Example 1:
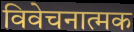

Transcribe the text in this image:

विवेचनात्मक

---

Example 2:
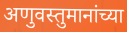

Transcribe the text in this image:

अणुवस्तुमानांच्या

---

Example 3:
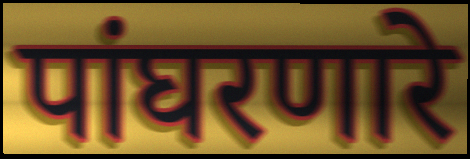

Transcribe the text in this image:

पांघरणारे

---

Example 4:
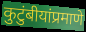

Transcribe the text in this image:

कुटुंबीयांप्रमाणे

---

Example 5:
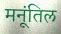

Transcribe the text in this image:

मनूंतिल